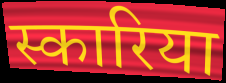
स्कारिया